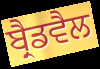
ਬ੍ਰੈਡਵੈਲ